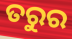
ତରୁର